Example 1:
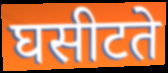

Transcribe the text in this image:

घसीटते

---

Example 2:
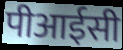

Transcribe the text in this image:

पीआईसी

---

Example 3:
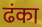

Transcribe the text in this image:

ढंका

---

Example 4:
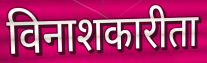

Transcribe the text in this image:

विनाशकारीता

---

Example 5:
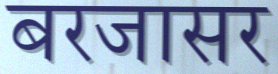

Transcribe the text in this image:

बरजासर